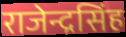
राजेन्द्रसिंह